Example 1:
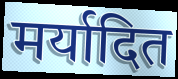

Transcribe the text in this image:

मर्यादित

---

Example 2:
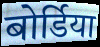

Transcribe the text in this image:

बोर्डिया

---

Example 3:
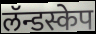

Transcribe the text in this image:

लॅन्डस्केप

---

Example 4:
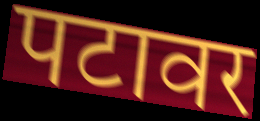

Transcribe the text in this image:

पटावर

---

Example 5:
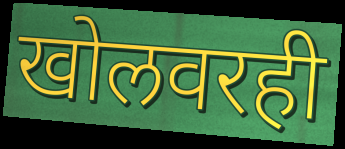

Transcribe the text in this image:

खोलवरही